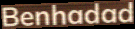
Benhadad